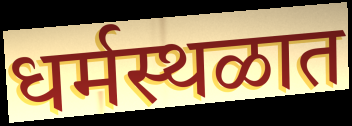
धर्मस्थळात